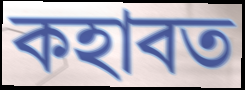
কহাবত